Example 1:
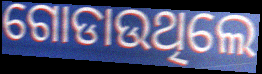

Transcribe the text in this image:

ଗୋଡାଉଥିଲେ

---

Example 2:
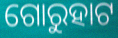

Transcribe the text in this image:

ଗୋରୁହାଟ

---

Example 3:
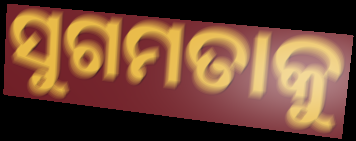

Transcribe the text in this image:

ସୁଗମତାକୁ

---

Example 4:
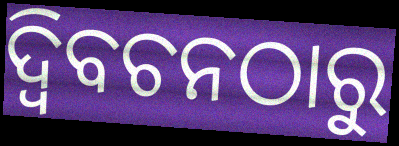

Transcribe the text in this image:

ଦ୍ବିବଚନଠାରୁ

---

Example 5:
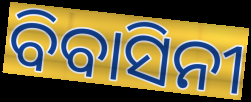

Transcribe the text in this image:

ବିବାସିନୀ